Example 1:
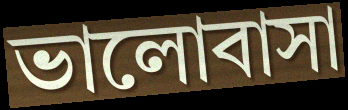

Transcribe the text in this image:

ভালোবাসা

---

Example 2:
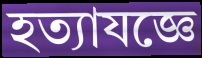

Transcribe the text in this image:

হত্যাযজ্ঞে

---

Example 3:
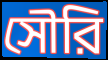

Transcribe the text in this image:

সৌরি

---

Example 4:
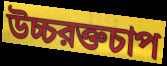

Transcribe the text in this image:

উচ্চরক্তচাপ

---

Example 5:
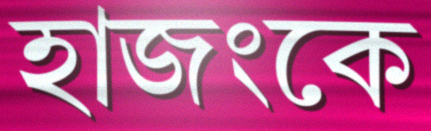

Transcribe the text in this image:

হাজংকে